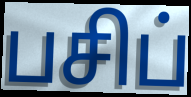
பசிப்